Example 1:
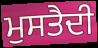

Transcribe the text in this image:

ਮੁਸਤੈਦੀ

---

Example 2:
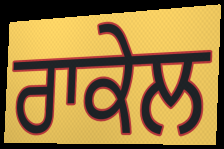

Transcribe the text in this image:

ਰਾਕੇਲ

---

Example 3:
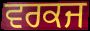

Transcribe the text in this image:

ਵਰਕਜ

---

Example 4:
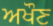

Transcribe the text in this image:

ਅਖੌਣ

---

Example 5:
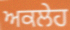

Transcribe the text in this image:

ਅਕਲੇਹ